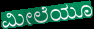
ಮೀಲೆಯೂ